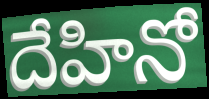
దేహినో